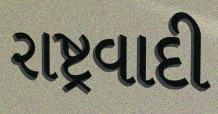
રાષ્ટ્રવાદી